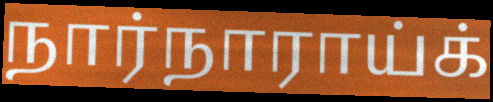
நார்நாராய்க்